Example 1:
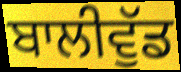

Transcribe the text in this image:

ਬਾਲੀਵੁੱਡ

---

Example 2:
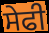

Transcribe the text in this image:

ਸੇਫੀ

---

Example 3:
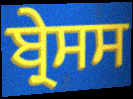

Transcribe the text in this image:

ਬ੍ਰੇਸਸ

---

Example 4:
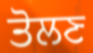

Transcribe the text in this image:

ਤੋਲਣ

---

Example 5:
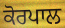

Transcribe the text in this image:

ਕੋਰਪਾਲ